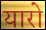
यारो